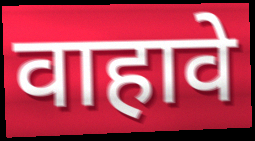
वाहावे